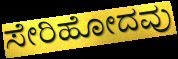
ಸೇರಿಹೋದವು